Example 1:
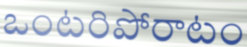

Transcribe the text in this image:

ఒంటరిపోరాటం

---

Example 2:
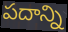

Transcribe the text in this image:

పదాన్ని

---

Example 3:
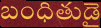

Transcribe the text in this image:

బంధితుడై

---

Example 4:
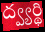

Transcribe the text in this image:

ద్వ్యర్థి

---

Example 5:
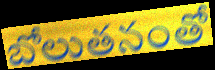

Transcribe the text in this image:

బోలుతనంతో